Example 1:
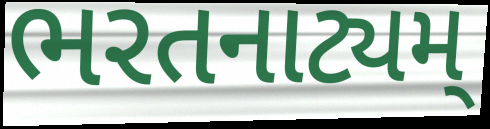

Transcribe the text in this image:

ભરતનાટ્યમ્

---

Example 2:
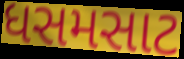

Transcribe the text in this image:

ધસમસાટ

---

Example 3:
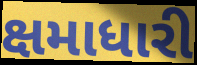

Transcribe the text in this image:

ક્ષમાધારી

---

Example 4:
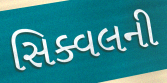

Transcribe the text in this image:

સિક્વલની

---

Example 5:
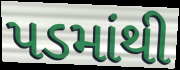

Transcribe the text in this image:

પડમાંથી